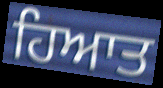
ਹਿਆਤ